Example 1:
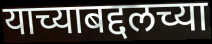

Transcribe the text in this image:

याच्याबद्दलच्या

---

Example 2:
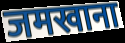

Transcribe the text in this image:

जमखाना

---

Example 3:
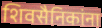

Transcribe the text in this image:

शिवसैनिकांना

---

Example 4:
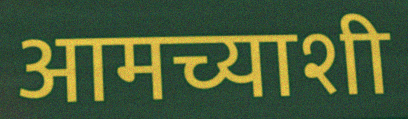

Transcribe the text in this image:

आमच्याशी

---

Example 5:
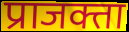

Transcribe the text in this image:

प्राजक्ता